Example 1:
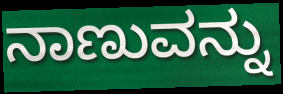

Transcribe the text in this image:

ನಾಣುವನ್ನು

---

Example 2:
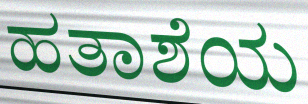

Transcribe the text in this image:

ಹತಾಶೆಯ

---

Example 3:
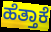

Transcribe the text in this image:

ಹೆತ್ತಾಕೆ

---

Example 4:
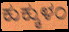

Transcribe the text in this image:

ಕುಕ್ಕುಳಂ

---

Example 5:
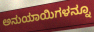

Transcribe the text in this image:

ಅನುಯಾಯಿಗಳನ್ನೂ